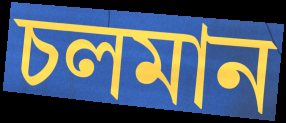
চলমান